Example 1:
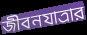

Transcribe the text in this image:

জীবনযাত্রার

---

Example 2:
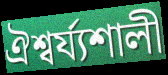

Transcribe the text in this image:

ঐশ্বর্য্যশালী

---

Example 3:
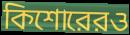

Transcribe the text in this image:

কিশোরেরও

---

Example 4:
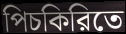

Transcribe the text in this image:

পিচকিরিতে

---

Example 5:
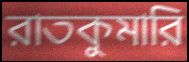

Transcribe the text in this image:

রাতকুমারি